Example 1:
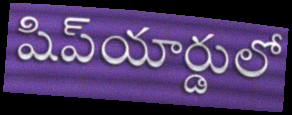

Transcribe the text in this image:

షిప్‌యార్డులో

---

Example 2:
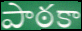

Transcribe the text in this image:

పాఠకా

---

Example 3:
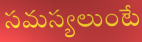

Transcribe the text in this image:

సమస్యలుంటే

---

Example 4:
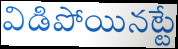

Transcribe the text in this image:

విడిపోయినట్టే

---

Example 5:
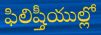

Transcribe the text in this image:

ఫిలిష్తీయుల్లో